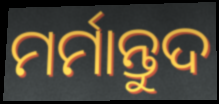
ମର୍ମାନ୍ତୁଦ